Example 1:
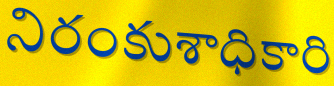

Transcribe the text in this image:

నిరంకుశాధికారి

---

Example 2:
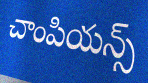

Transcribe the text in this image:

చాంపియన్స్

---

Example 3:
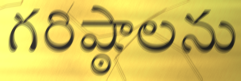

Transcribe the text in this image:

గరిష్ఠాలను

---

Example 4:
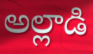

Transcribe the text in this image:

అల్లాడి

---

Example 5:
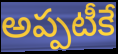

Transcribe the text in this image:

అప్పటీకే